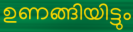
ഉണങ്ങിയിട്ടും